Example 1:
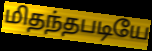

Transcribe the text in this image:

மிதந்தபடியே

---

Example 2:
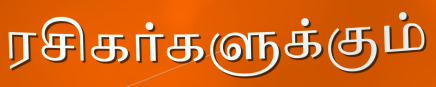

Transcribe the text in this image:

ரசிகர்களுக்கும்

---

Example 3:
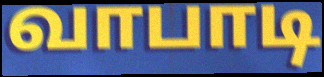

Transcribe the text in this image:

வாபாடி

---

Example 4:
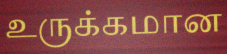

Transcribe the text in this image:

உருக்கமான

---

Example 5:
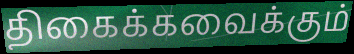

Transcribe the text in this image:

திகைக்கவைக்கும்